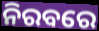
ନିରବରେ